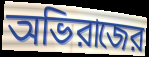
অভিরাজের